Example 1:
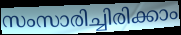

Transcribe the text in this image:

സംസാരിച്ചിരിക്കാം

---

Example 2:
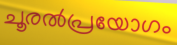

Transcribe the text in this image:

ചൂരൽപ്രയോഗം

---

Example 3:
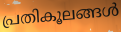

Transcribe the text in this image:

പ്രതികൂലങ്ങൾ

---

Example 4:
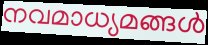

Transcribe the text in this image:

നവമാധ്യമങ്ങൾ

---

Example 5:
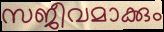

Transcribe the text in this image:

സജീവമാക്കും